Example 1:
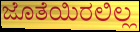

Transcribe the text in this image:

ಜೊತೆಯಿರಲಿಲ್ಲ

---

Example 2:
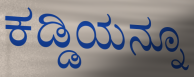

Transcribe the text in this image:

ಕಡ್ಡಿಯನ್ನೂ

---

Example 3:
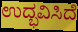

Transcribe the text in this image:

ಉದ್ಭವಿಸಿದೆ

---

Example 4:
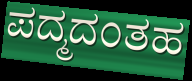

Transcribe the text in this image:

ಪದ್ಮದಂತಹ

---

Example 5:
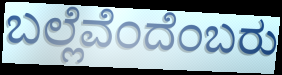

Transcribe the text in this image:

ಬಲ್ಲೆವೆಂದೆಂಬರು